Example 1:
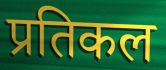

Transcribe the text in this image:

प्रतिकल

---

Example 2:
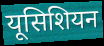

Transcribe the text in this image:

यूसिशियन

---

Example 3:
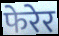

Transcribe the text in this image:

फेरेर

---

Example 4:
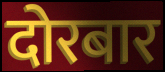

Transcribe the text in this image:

दोरबार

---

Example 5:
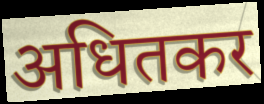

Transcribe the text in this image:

अधितकर